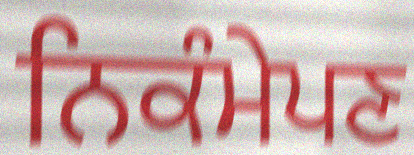
ਨਿਕੰਮੇਪਣ